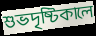
শুভদৃষ্টিকালে